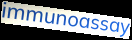
immunoassay